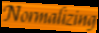
Normalizing